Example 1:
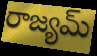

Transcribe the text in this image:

రాజ్యమ్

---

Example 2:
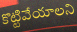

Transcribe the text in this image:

కొట్టివేయాలని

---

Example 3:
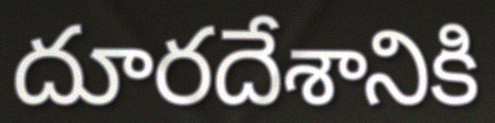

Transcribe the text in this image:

దూరదేశానికి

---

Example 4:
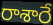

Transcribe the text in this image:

రాశారే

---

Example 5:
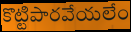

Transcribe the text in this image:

కొట్టిపారవేయలేం